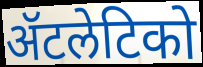
ॲटलेटिको